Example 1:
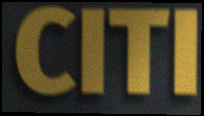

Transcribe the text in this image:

CITI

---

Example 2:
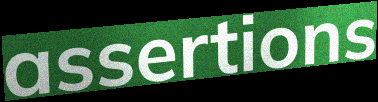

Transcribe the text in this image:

assertions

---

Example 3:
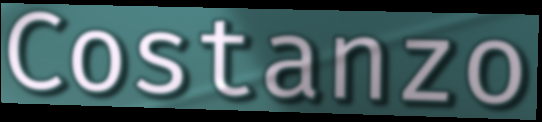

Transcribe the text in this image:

Costanzo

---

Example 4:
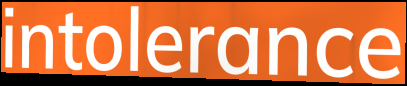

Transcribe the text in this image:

intolerance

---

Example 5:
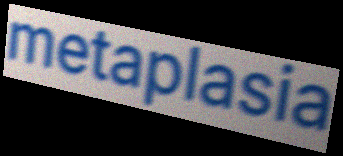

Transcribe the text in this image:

metaplasia